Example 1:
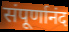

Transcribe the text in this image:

संपूर्णानंद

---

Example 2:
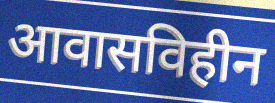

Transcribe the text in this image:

आवासविहीन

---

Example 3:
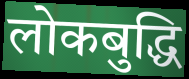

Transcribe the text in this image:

लोकबुद्धि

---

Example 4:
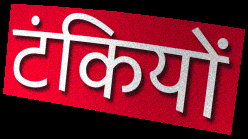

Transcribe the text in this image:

टंकियों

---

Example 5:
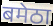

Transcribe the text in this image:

बमेठा